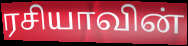
ரசியாவின்